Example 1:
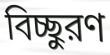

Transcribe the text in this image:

বিচ্ছুরণ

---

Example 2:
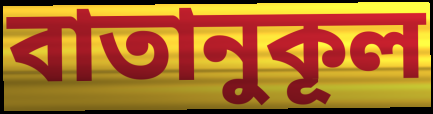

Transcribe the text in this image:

বাতানুকূল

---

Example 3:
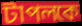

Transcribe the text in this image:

টাপলকে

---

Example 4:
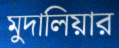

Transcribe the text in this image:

মুদালিয়ার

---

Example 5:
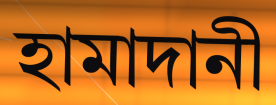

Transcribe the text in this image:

হামাদানী